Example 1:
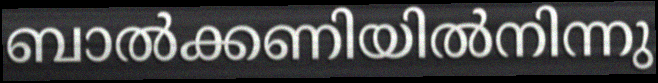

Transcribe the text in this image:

ബാൽക്കണിയിൽനിന്നു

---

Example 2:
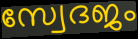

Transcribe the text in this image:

സ്വേദജം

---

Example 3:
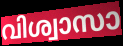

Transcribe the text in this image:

വിശ്വാസാ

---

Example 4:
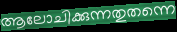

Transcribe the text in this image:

ആലോചിക്കുന്നതുതന്നെ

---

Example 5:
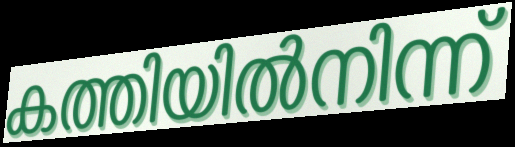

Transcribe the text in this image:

കത്തിയിൽനിന്ന്